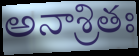
అనాశ్రితః